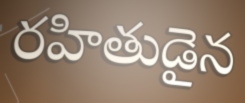
రహితుడైన